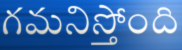
గమనిస్తోంది